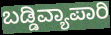
ಬಡ್ಡಿವ್ಯಾಪಾರಿ